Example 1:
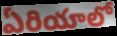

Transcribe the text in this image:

ఏరియాలో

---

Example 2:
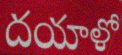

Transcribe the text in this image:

దయాళో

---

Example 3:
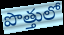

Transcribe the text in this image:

పొత్తులో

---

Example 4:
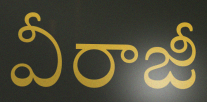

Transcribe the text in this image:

వీరాజీ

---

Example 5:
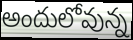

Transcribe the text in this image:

అందులోవున్న